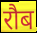
रौब